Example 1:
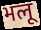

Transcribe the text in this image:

भलू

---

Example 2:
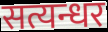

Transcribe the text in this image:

सत्यन्धर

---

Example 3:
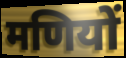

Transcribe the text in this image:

मणियों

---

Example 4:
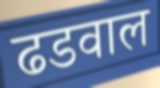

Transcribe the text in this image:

ढडवाल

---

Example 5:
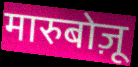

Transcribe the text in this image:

मारुबोज़ू